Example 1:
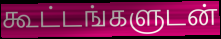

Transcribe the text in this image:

கூட்டங்களுடன்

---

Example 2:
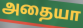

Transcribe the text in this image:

அதையா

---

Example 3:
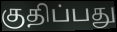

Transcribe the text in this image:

குதிப்பது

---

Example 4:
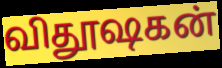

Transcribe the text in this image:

விதூஷகன்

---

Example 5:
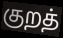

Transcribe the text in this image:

குறத்